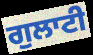
ਗੁਲਾਟੀ